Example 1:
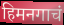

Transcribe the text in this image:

हिमनगाचं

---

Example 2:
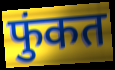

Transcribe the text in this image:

फुंकत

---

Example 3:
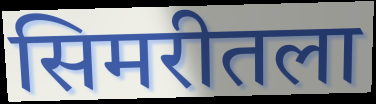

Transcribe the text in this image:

सिमरीतला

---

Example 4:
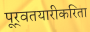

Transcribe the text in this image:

पूर्वतयारीकरिता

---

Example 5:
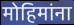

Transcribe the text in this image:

मोहिमांना